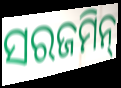
ସରଜମିନ୍